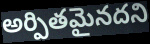
అర్పితమైనదని